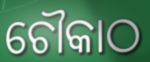
ଚୌକାଠ